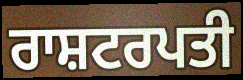
ਰਾਸ਼ਟਰਪਤੀ